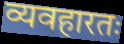
व्यवहारतः